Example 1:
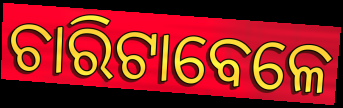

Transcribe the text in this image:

ଚାରିଟାବେଳେ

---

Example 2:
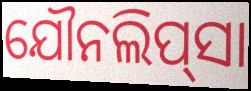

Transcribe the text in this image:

ଯୌନଲିପ୍‌ସା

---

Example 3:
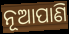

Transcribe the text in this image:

ନୂଆପାଣି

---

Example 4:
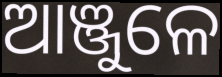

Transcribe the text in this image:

ଆଞ୍ଜୁଳେ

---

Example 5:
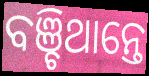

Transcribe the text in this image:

ବଞ୍ଚିଥାନ୍ତେ